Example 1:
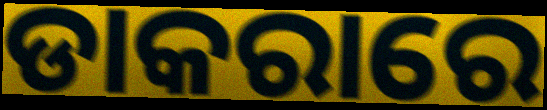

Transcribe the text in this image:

ଡାକରାରେ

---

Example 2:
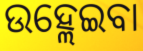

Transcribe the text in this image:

ଉହ୍ଲେଇବା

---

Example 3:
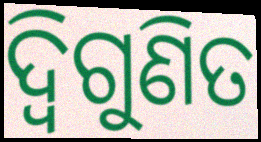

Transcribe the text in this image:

ଦ୍ୱିଗୁଣିତ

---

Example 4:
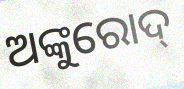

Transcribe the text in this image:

ଅଙ୍କୁରୋଦ୍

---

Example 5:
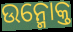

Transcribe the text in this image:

ଉନ୍ମୋକ୍ତ